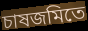
চাষজমিতে